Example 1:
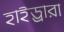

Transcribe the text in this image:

হাইড্রারা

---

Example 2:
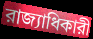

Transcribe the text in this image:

রাজ্যাধিকারী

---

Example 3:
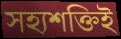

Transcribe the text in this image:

সহ্যশক্তিই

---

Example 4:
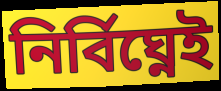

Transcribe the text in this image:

নির্বিঘ্নেই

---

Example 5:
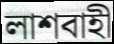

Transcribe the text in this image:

লাশবাহী